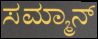
ಸಮ್ಮಾನ್